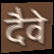
दैवे